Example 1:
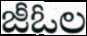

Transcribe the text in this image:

జీఓల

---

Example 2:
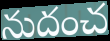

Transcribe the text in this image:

నుదంచ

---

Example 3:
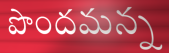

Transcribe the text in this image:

పొందమన్న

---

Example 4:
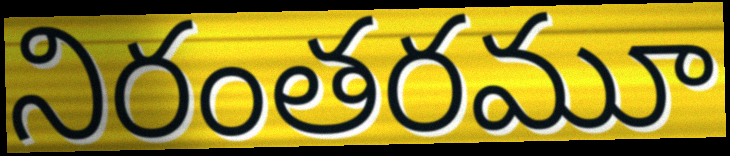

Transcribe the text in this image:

నిరంతరమూ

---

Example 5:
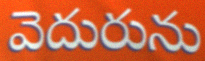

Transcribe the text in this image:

వెదురును